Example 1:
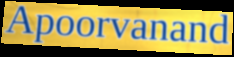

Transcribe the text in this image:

Apoorvanand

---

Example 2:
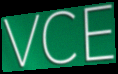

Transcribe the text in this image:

VCE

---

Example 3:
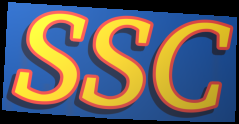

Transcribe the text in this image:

SSC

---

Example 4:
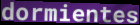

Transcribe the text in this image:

dormientes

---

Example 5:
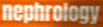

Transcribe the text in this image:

nephrology